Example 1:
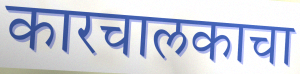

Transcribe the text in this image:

कारचालकाचा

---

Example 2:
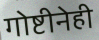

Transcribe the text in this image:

गोष्टीनेही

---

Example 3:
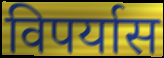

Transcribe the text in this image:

विपर्यास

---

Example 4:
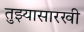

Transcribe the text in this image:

तुझ्यासारखी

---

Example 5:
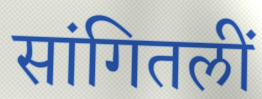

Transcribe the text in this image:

सांगितलीं